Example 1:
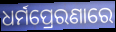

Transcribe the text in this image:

ଧର୍ମପ୍ରେରଣାରେ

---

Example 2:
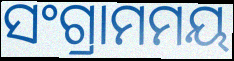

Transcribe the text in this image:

ସଂଗ୍ରାମମୟ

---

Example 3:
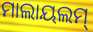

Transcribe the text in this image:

ମାଲାୟଲମ୍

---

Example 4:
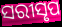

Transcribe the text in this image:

ସରୀସୃପ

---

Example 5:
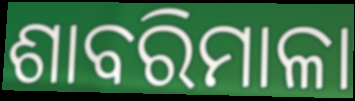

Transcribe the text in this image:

ଶାବରିମାଳା